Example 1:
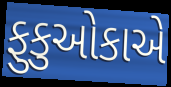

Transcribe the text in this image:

ફુકુઓકાએ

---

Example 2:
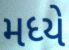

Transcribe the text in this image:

મધ્યે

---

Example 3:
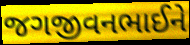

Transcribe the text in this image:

જગજીવનભાઈને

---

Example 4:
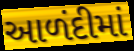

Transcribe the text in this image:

આળંદીમાં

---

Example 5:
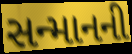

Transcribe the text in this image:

સન્માનની